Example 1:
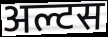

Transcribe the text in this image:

अल्टस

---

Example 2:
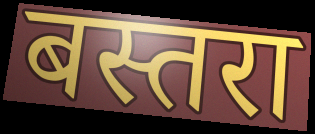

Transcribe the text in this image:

बस्तरा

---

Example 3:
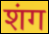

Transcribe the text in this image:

शंग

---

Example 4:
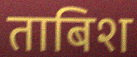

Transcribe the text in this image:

ताबिश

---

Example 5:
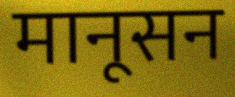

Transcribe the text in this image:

मानूसन